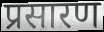
प्रसारण